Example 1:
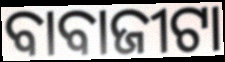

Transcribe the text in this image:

ବାବାଜୀଟା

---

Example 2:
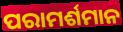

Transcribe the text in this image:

ପରାମର୍ଶମାନ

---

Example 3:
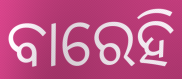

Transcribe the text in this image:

ବାରେହି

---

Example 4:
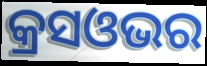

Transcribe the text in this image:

କ୍ରସଓଭର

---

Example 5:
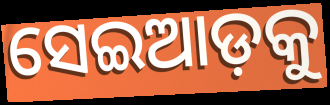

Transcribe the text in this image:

ସେଇଆଡ଼କୁ